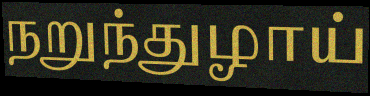
நறுந்துழாய்